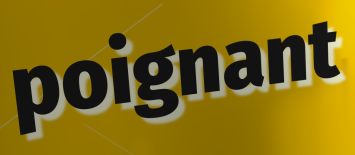
poignant